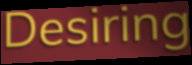
Desiring